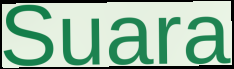
Suara